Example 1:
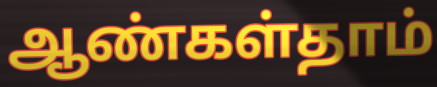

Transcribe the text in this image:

ஆண்கள்தாம்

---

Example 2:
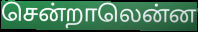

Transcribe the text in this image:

சென்றாலென்ன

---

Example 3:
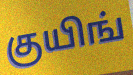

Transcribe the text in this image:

குயிங்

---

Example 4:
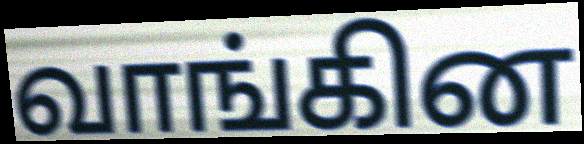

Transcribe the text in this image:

வாங்கின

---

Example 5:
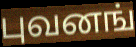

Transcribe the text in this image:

புவனங்